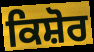
ਕਿਸ਼ੋਰ